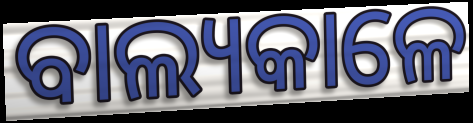
ବାଲ୍ୟକାଳେ